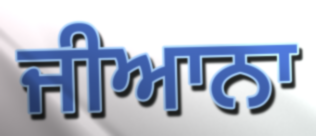
ਜੀਆਨਾ